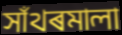
সাঁথৰমালা